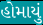
હોમાયું